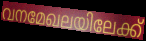
വനമേഖലയിലേക്ക്